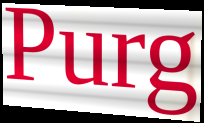
Purg